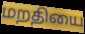
மறதியை